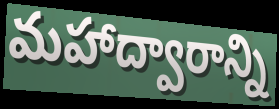
మహాద్వారాన్ని